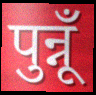
पुन्नूँ